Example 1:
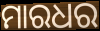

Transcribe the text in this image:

ମାରଧର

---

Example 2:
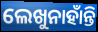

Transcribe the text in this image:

ଲେଖୁନାହାଁନ୍ତି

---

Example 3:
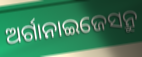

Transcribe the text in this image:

ଅର୍ଗାନାଇଜେସନ୍ରୁ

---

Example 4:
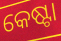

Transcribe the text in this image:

କେଷ୍ଟା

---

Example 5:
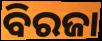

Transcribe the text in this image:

ବିରଜା